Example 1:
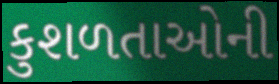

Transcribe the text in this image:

કુશળતાઓની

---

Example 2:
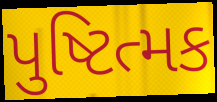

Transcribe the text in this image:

પુષ્ટિત્મક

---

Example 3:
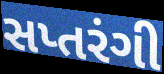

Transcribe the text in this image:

સપ્તરંગી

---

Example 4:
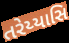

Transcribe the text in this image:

તરેય્યાસિ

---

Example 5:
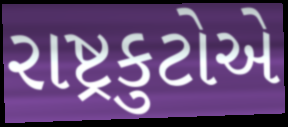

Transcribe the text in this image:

રાષ્ટ્રકુટોએ